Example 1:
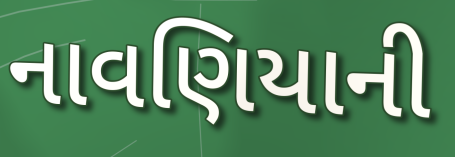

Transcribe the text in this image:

નાવણિયાની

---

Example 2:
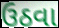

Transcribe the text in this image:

ઉઠવા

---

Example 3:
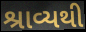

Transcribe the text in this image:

શ્રાવ્યથી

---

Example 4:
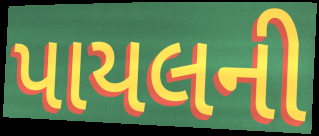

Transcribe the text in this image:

પાયલની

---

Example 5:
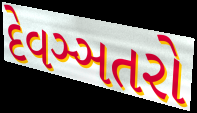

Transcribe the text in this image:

દેવઞ્ઞતરો